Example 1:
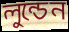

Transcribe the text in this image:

লুন্ডেন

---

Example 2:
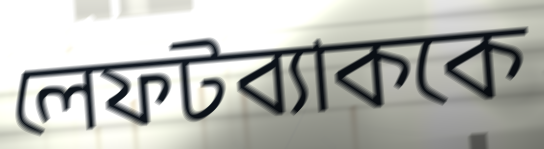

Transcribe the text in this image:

লেফটব্যাককে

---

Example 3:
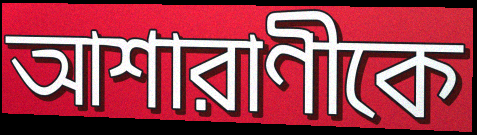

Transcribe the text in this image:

আশারাণীকে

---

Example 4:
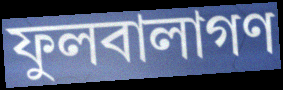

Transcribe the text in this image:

ফুলবালাগণ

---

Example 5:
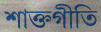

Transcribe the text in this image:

শাক্তগীতি